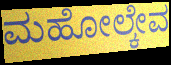
ಮಹೋಲ್ಕೇವ